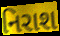
નિરાશ